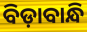
ବିଡ଼ାବାନ୍ଧି